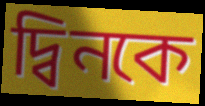
দ্বিনকে